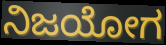
ನಿಜಯೋಗ